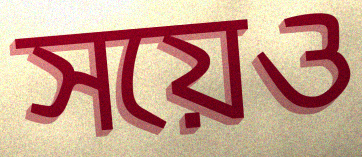
সয়েও